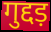
गुद्दड़